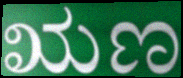
ಋಣ